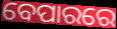
ବେପାରରେ